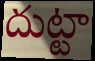
దుట్టా